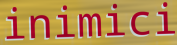
inimici